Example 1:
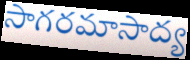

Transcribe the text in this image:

సాగరమాసాద్య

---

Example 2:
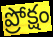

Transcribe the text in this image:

ప్రోక్షం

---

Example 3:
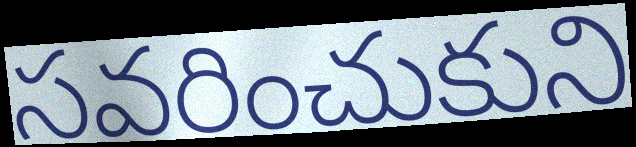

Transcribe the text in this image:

సవరించుకుని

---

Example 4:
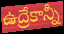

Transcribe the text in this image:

ఉద్రేకాన్నీ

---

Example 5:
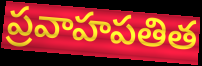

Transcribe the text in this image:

ప్రవాహపతిత